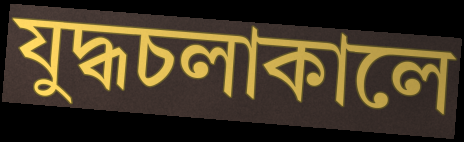
যুদ্ধচলাকালে